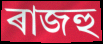
ৰাজহু